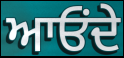
ਆਓਂਦੇ